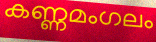
കണ്ണമംഗലം